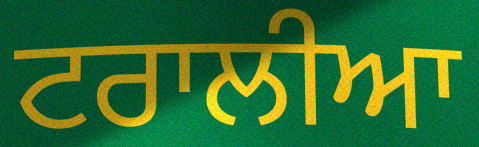
ਟਰਾਲੀਆ